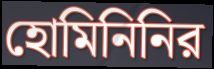
হোমিনিনির